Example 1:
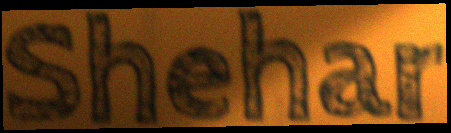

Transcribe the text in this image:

Shehar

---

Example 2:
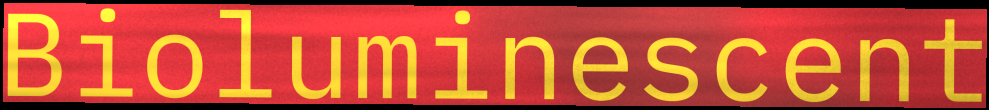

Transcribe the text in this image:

Bioluminescent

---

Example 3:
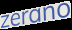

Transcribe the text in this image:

zerano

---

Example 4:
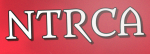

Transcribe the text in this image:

NTRCA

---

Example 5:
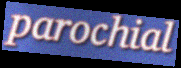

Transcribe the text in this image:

parochial